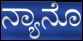
ನ್ಯಾನೊ